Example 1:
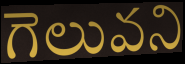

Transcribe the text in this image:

గెలువని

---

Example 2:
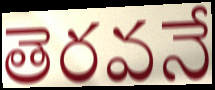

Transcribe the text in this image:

తెరవనే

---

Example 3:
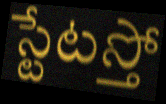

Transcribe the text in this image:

స్టేటస్తో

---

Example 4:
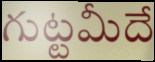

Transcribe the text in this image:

గుట్టమీదే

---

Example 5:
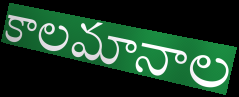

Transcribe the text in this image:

కాలమానాల